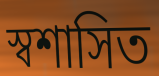
স্বশাসিত